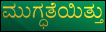
ಮುಗ್ಧತೆಯಿತ್ತು